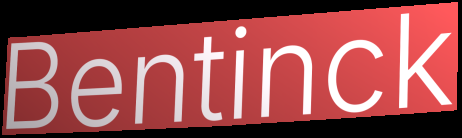
Bentinck